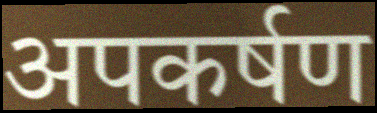
अपकर्षण